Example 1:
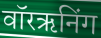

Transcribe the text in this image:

वॉरऋनिंग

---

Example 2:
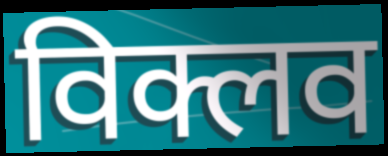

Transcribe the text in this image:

विक्लव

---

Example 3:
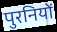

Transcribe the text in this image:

पुरनियों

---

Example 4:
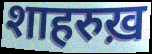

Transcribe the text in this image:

शाहरुख़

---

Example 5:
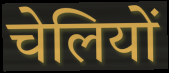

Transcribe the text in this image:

चेलियों